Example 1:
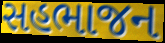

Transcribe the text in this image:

સહભાજન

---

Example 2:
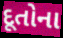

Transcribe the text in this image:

દૂતોના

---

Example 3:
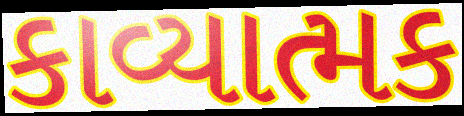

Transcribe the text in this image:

કાવ્યાત્મક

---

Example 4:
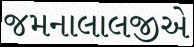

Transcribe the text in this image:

જમનાલાલજીએ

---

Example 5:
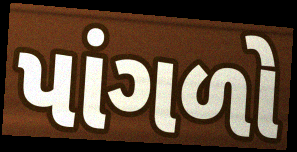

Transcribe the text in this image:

પાંગળો